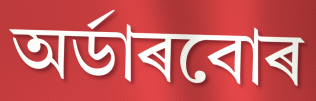
অৰ্ডাৰবোৰ